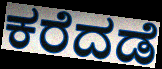
ಕರೆದಡೆ